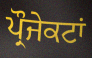
ਪ੍ਰੌਜੇਕਟਾਂ